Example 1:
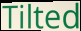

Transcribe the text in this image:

Tilted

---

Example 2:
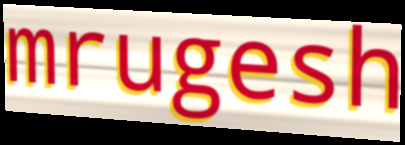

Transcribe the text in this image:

mrugesh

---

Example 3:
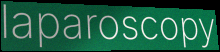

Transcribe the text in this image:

laparoscopy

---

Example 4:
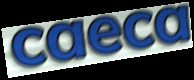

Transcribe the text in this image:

caeca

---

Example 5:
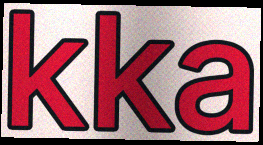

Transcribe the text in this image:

kka